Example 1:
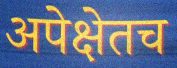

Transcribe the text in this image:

अपेक्षेतच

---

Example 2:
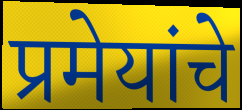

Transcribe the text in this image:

प्रमेयांचे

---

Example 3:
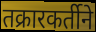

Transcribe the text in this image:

तक्रारकर्तीने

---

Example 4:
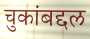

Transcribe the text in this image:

चुकांबद्दल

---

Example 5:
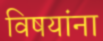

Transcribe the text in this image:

विषयांना